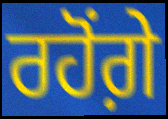
ਰਹੋਂਗ਼ੇ